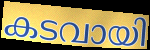
കടവായി